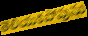
తెలియకపోవును